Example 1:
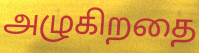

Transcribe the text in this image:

அழுகிறதை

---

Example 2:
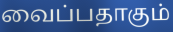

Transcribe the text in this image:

வைப்பதாகும்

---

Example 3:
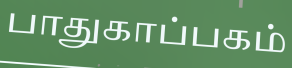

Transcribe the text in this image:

பாதுகாப்பகம்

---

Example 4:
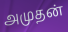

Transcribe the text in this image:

அமுதன்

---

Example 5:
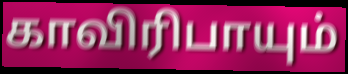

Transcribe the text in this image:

காவிரிபாயும்